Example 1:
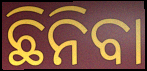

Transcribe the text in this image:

ଛିନିବା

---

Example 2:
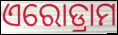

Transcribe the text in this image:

ଏରୋଡ୍ରାମ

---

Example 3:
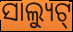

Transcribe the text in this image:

ସାଲ୍ୟୁଟ୍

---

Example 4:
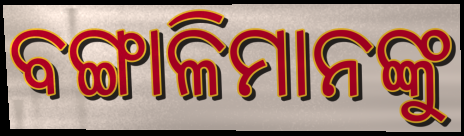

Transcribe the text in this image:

ବଙ୍ଗାଳିମାନଙ୍କୁ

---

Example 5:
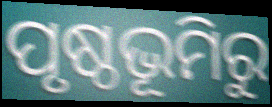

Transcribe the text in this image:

ପୃଷ୍ଠଭୂମିରୁ